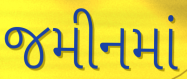
જમીનમાં